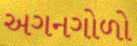
અગનગોળો